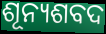
ଶୂନ୍ୟଶବଦ